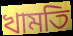
খামতি